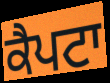
ਕੈਪਟਾ